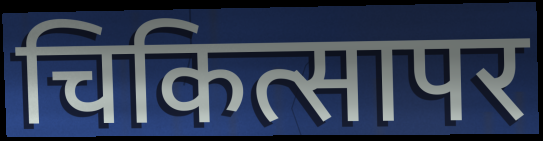
चिकित्सापर